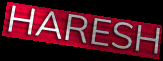
HARESH